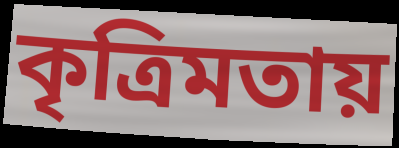
কৃত্রিমতায়